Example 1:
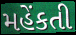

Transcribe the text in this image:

મહેંકતી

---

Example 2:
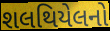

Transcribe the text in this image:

શલથિયેલનો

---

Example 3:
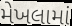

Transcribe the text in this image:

મેખલામાં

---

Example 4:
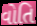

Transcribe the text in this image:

વોતિ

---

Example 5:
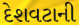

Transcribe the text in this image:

દેશવટાની